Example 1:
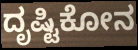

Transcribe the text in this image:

ದೃಷ್ಟಿಕೋನ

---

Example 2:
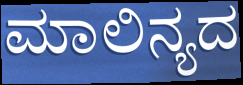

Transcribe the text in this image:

ಮಾಲಿನ್ಯದ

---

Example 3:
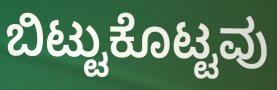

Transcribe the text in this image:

ಬಿಟ್ಟುಕೊಟ್ಟವು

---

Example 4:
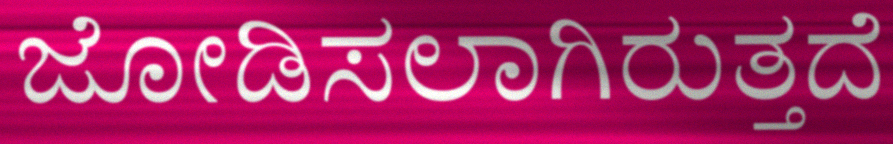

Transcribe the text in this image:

ಜೋಡಿಸಲಾಗಿರುತ್ತದೆ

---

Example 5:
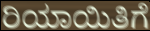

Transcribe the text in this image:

ರಿಯಾಯಿತಿಗೆ